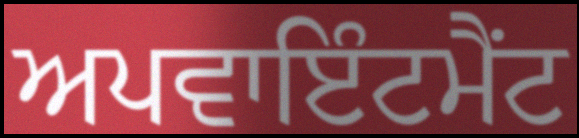
ਅਪਵਾਇੰਟਮੈਂਟ